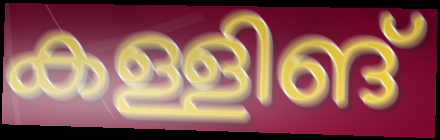
കള്ളിങ്